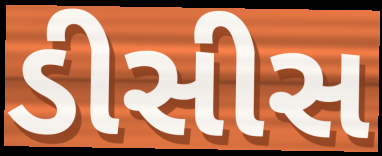
ડીસીસ